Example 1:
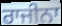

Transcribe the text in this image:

ਰਾਜੀਨਾ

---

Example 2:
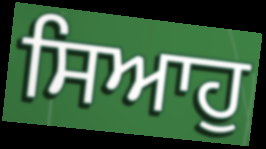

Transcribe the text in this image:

ਸਿਆਹੁ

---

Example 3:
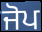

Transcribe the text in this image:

ਜੋਪ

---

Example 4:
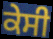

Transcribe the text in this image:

ਕੇਸੀ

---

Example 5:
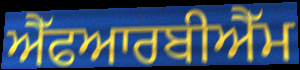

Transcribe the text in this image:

ਐੱਫਆਰਬੀਐੱਮ